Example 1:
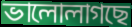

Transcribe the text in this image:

ভালোলাগছে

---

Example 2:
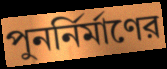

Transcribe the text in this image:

পুনর্নির্মাণের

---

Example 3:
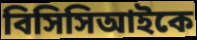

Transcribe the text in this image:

বিসিসিআইকে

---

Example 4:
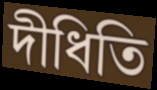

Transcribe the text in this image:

দীধিতি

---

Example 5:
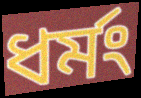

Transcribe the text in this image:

ধর্মং